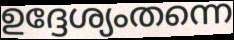
ഉദ്ദേശ്യംതന്നെ